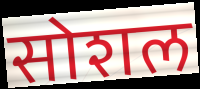
सोशल